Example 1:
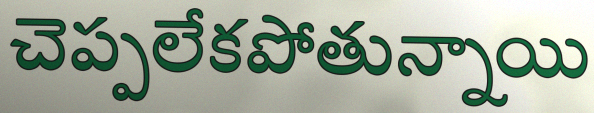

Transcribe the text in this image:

చెప్పలేకపోతున్నాయి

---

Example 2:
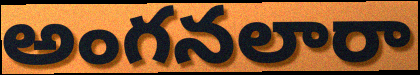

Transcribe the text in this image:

అంగనలారా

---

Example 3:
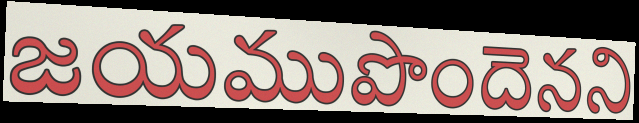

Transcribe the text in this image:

జయముపొందెనని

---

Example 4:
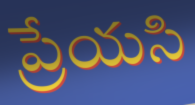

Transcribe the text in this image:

ప్రేయసి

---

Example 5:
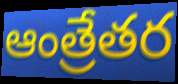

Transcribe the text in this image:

ఆంత్రేతర